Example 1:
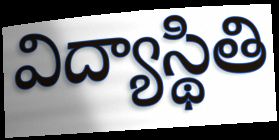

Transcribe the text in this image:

విద్యాస్థితి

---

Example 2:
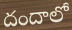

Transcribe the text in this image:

దందాలో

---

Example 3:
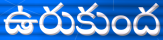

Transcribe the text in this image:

ఉరుకుంద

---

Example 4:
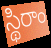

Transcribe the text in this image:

స్థిరాం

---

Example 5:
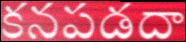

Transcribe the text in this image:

కనపడదా